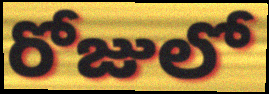
రోజులో